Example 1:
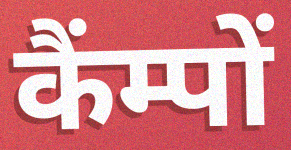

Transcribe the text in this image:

कैंम्पों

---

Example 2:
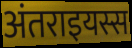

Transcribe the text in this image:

अंतराइयस्स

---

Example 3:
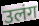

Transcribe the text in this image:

उलंग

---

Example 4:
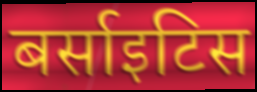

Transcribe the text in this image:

बर्साइटिस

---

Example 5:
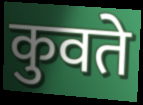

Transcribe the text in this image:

कुवते